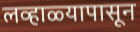
लव्हाळ्यापासून